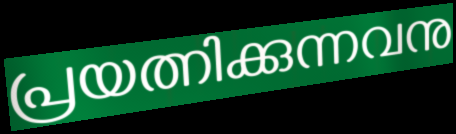
പ്രയത്നിക്കുന്നവനു